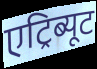
एट्रिब्यूट